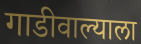
गाडीवाल्याला